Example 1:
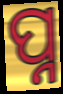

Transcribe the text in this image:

ପ୍ନ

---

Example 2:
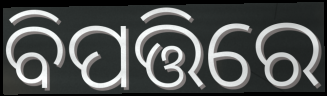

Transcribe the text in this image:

ବିପତ୍ତିରେ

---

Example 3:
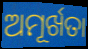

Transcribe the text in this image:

ଅମୂର୍ଖତା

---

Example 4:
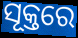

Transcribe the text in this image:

ସୂକ୍ତରେ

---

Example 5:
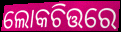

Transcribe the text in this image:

ଲୋକଚିତ୍ତରେ